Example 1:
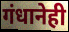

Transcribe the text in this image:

गंधानेही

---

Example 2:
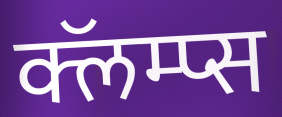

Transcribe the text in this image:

क्लॅम्प्स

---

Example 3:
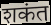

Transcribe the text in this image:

शकंत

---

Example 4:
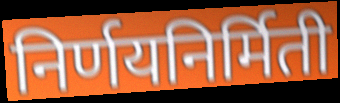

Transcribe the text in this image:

निर्णयनिर्मिती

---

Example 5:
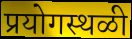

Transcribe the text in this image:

प्रयोगस्थळी